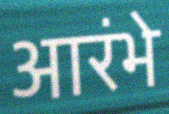
आरंभे